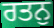
ਰਤਨੁ